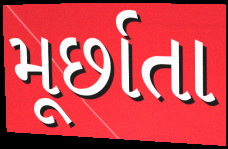
મૂર્છાતા